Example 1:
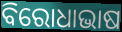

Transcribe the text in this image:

ବିରୋଧାଭାଷ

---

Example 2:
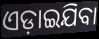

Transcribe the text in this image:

ଏଡ଼ାଇଯିବା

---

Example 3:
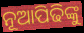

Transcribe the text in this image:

ନୂଆପିଢିଙ୍କୁ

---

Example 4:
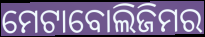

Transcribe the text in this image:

ମେଟାବୋଲିଜିମର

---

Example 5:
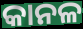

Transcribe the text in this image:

କାନଳ